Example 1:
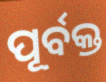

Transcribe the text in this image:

ପୂର୍ବକ୍ତ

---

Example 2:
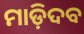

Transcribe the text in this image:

ମାଡ଼ିଦବ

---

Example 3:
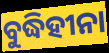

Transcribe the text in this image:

ବୁଦ୍ଧିହୀନା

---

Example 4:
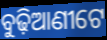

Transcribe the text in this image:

ବୁଢ଼ିଆଣୀଟେ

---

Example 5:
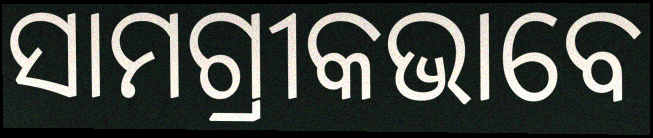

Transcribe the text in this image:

ସାମଗ୍ରୀକଭାବେ